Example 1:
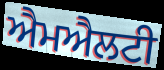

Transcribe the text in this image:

ਐਮਐਲਟੀ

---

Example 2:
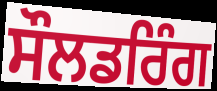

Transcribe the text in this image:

ਸੌਲਡਰਿੰਗ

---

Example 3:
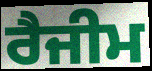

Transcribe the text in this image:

ਰੈਜੀਮ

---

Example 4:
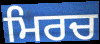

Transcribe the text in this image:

ਮਿਰਚ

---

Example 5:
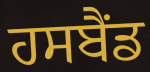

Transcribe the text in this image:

ਹਸਬੈਂਡ